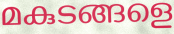
മകുടങ്ങളെ